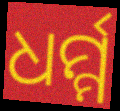
ଧର୍ମ୍ମ